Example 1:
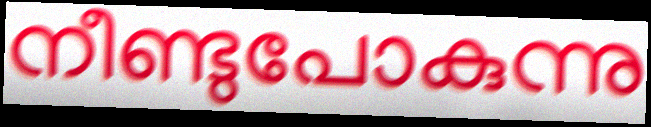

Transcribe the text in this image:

നീണ്ടുപോകുന്നു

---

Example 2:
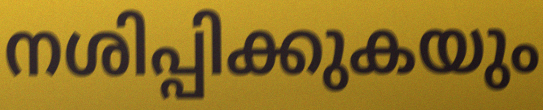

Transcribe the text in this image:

നശിപ്പിക്കുകയും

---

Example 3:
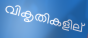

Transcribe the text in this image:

വികൃതികളില്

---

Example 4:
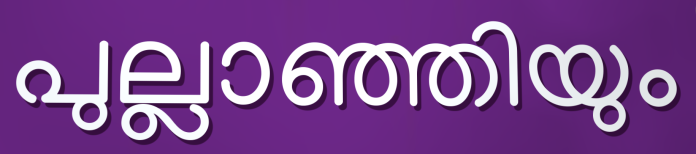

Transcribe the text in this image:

പുല്ലാഞ്ഞിയും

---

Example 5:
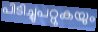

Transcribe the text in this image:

പിടിച്ചുപറ്റുകയും